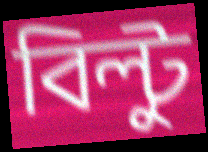
বিল্টু